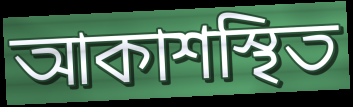
আকাশস্থিত